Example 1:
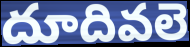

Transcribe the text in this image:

దూదివలె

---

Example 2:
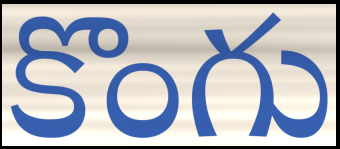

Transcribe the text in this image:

కొంగు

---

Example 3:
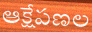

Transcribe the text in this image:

ఆక్షేపణల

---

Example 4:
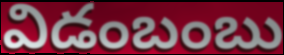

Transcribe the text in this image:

విడంబంబు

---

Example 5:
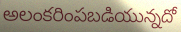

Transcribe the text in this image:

అలంకరింపబడియున్నదో